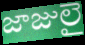
జాజులై